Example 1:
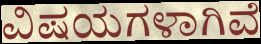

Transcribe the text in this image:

ವಿಷಯಗಳಾಗಿವೆ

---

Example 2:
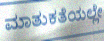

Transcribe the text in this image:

ಮಾತುಕತೆಯಲ್ಲೇ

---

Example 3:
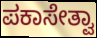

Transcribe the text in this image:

ಪಕಾಸೇತ್ವಾ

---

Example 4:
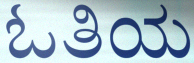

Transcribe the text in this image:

ಓತಿಯ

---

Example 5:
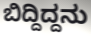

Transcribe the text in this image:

ಬಿದ್ದಿದ್ದನು